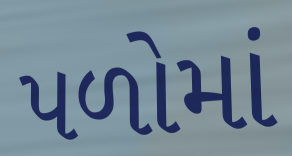
પળોમાં